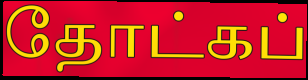
தோட்கப்